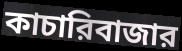
কাচারিবাজার